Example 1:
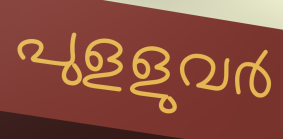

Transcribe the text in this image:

പുളളുവർ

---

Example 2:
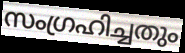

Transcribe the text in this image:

സംഗ്രഹിച്ചതും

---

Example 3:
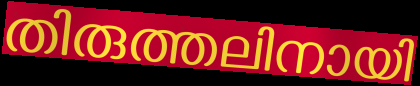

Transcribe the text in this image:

തിരുത്തലിനായി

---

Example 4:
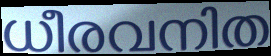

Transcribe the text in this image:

ധീരവനിത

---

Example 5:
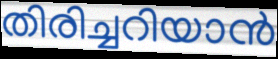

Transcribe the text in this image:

തിരിച്ചറിയാൻ